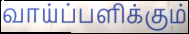
வாய்ப்பளிக்கும்